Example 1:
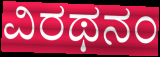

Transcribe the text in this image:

ವಿರಥನಂ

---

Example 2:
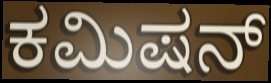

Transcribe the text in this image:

ಕಮಿಷನ್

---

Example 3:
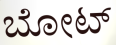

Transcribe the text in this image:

ಬೋಟ್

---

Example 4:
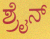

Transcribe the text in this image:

ಶ್ರೈನ್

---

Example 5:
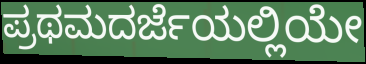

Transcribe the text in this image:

ಪ್ರಥಮದರ್ಜೆಯಲ್ಲಿಯೇ